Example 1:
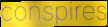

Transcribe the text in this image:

conspires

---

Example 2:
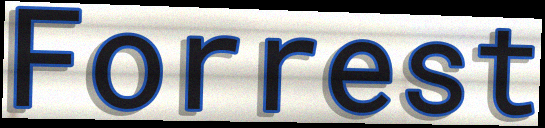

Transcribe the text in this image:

Forrest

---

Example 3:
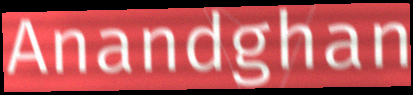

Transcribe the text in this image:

Anandghan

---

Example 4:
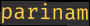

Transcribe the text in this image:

parinam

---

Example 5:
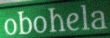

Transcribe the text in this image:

obohela